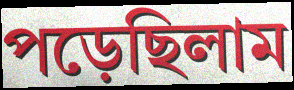
পড়েছিলাম